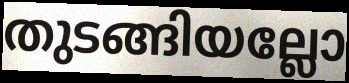
തുടങ്ങിയല്ലോ